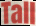
Tall